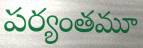
పర్యంతమూ